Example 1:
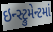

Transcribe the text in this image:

ઇન્સ્ટ્રુમેન્ટમાં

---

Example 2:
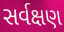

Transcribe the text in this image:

સર્વક્ષણ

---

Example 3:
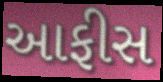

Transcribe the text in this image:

આફીસ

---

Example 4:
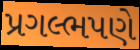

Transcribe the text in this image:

પ્રગલ્ભપણે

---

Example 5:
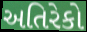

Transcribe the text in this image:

અતિરેકો